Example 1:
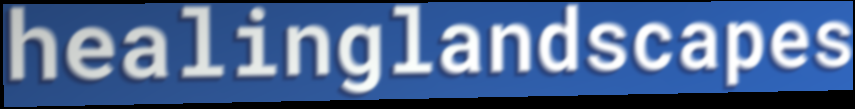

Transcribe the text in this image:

healinglandscapes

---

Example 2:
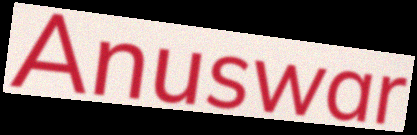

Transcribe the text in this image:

Anuswar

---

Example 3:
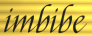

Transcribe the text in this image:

imbibe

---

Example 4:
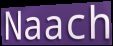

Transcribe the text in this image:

Naach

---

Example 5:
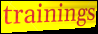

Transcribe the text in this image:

trainings